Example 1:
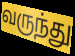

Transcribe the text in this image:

வருந்து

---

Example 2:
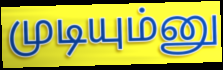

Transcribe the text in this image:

முடியும்னு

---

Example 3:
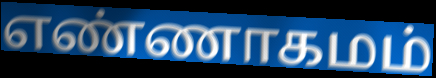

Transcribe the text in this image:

எண்ணாகமம்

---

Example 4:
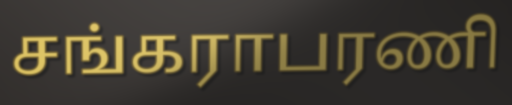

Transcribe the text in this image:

சங்கராபரணி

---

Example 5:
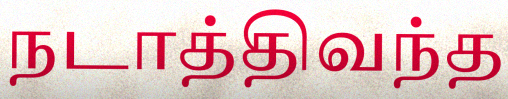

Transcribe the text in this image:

நடாத்திவந்த